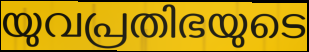
യുവപ്രതിഭയുടെ